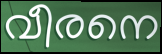
വീരനെ